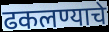
ढकलण्याचे